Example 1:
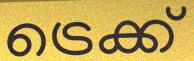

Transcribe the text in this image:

ട്രെക്ക്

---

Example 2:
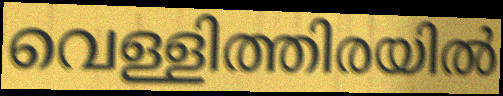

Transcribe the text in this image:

വെള്ളിത്തിരയിൽ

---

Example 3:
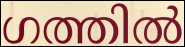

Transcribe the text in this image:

ഗത്തിൽ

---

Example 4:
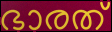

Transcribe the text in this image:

ഭാരത്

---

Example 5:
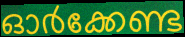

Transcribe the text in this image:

ഓർക്കേണ്ട